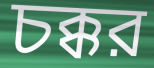
চক্কর